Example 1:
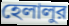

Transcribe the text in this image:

হেলালুর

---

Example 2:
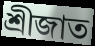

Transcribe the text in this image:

শ্রীজাত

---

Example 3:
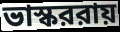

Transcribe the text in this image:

ভাস্কররায়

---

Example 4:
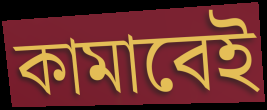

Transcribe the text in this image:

কামাবেই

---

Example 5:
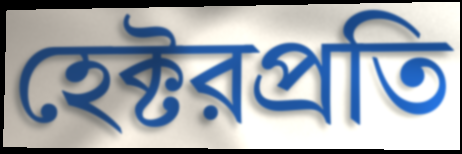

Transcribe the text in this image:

হেক্টরপ্রতি